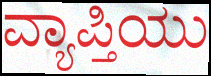
ವ್ಯಾಪ್ತಿಯು